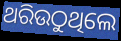
ଥରିଉଠୁଥିଲେ